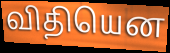
விதியென